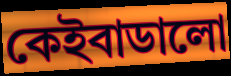
কেইবাডালো